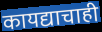
कायद्याचाही